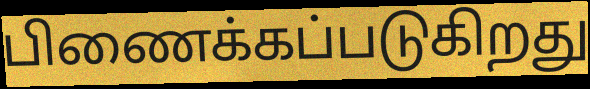
பிணைக்கப்படுகிறது